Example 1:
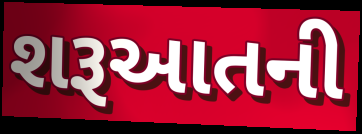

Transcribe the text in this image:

શરૂઆતની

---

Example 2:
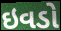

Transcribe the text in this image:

ઇવડો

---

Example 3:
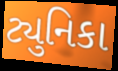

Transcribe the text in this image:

ટ્યુનિકા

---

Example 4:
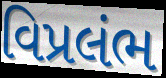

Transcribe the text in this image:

વિપ્રલંભ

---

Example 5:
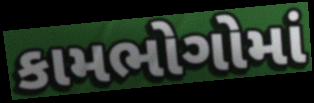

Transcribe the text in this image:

કામભોગોમાં